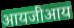
आयजीआय